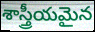
శాస్త్రీయమైన